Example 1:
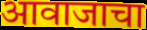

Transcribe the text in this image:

आवाजाचा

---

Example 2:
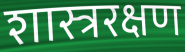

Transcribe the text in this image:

शास्त्ररक्षण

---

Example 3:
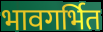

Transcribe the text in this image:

भावगर्भित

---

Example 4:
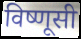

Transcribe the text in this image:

विष्णूसी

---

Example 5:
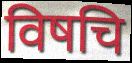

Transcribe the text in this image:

विषचि